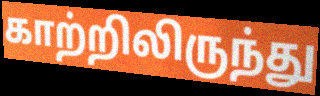
காற்றிலிருந்து